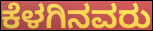
ಕೆಳಗಿನವರು